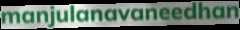
manjulanavaneedhan